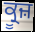
ਕ੍ਰੂਜ਼